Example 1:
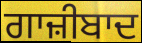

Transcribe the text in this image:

ਗਾਜ਼ੀਬਾਦ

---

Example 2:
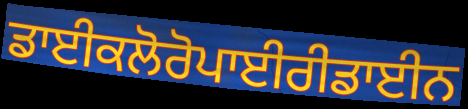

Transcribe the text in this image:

ਡਾਈਕਲੋਰੋਪਾਈਰੀਡਾਈਨ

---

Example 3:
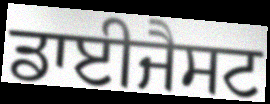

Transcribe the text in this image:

ਡਾਈਜੈਸਟ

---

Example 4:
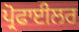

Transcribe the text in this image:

ਪ੍ਰੋਫਾਈਲਰ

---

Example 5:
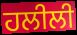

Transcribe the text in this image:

ਹਲੀਲੀ